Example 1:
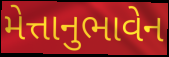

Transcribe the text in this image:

મેત્તાનુભાવેન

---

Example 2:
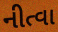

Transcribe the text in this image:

નીત્વા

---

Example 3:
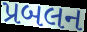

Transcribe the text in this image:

પ્રબલન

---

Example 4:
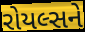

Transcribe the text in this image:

રોયલ્સને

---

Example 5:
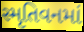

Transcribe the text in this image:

સ્મૃતિવનમાં